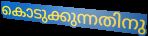
കൊടുക്കുന്നതിനു